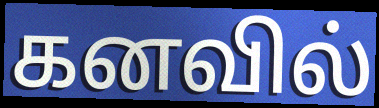
கனவில்